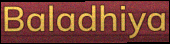
Baladhiya